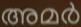
അമർ